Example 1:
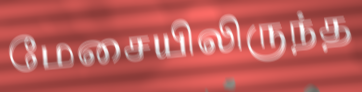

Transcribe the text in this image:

மேசையிலிருந்த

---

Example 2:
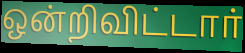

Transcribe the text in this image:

ஒன்றிவிட்டார்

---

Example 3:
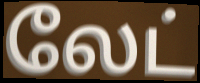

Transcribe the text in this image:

லேட்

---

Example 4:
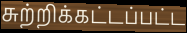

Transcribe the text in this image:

சுற்றிக்கட்டப்பட்ட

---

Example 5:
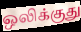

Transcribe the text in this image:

ஒலிக்குது